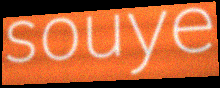
souye